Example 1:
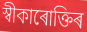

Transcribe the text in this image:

স্বীকাৰোক্তিৰ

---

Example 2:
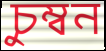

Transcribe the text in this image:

চুম্বন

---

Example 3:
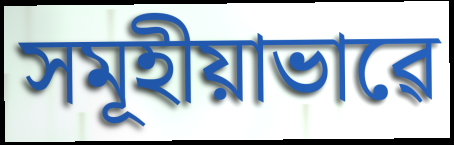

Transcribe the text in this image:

সমূহীয়াভাৱে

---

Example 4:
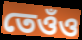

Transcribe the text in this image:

তেওঁও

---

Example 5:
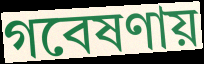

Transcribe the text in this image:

গবেষণায়